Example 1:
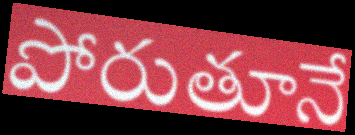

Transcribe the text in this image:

పోరుతూనే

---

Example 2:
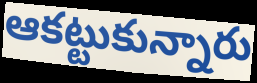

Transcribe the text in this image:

ఆకట్టుకున్నారు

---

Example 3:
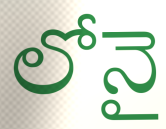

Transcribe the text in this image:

లోనై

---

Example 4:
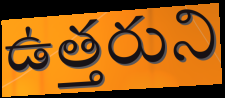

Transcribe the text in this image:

ఉత్తరుని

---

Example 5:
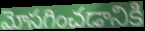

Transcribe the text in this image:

మోసగించడానికి